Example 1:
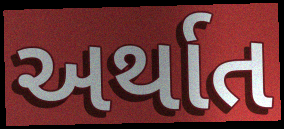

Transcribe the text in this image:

અર્થાત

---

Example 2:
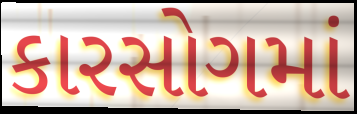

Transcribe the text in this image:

કારસોગમાં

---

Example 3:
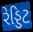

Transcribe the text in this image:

રેડ્ડિટ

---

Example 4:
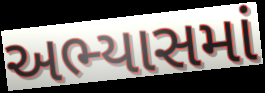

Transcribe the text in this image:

અભ્યાસમાં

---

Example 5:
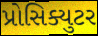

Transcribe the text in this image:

પ્રોસિક્યુટર